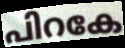
പിറകേ